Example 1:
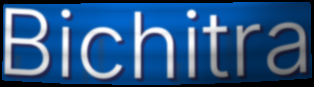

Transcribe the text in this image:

Bichitra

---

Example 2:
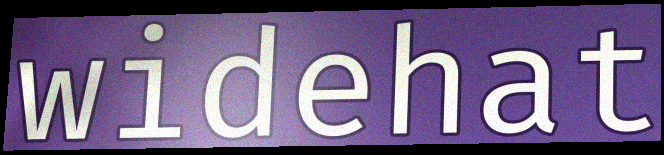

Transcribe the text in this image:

widehat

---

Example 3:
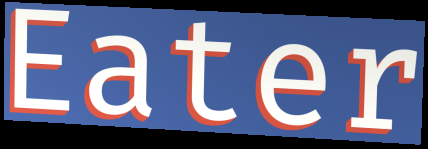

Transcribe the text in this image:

Eater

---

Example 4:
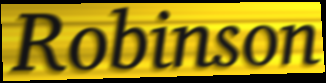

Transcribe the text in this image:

Robinson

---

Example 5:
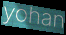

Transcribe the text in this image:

yohan